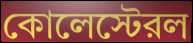
কোলেস্টেরল